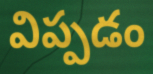
విప్పడం